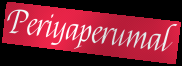
Periyaperumal